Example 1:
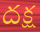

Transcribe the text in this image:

దక్ష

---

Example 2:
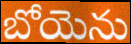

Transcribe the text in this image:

బోయెను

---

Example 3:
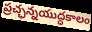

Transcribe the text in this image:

ప్రచ్ఛన్నయుద్ధకాలం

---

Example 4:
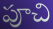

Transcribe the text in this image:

పూచి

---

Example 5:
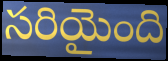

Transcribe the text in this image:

సరియైంది